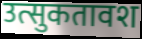
उत्सुकतावश